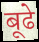
बूढे